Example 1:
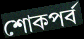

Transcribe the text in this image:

শোকপর্ব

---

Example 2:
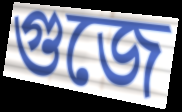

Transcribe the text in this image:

গুজে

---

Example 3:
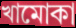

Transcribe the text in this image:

খামোকা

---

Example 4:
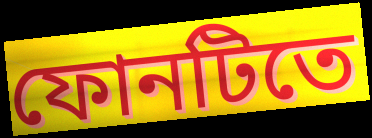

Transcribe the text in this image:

ফোনটিতে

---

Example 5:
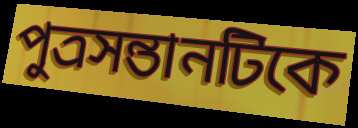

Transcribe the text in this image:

পুত্রসন্তানটিকে